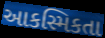
આકસ્મિકતા